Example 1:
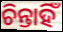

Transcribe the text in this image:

ଚିନ୍ତାହିଁ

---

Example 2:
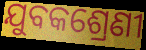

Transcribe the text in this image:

ଯୁବକଶ୍ରେଣୀ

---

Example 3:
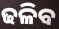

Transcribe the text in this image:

ଢଳିବ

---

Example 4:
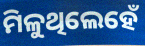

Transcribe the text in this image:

ମିଳୁଥିଲେହେଁ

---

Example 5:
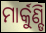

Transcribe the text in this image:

ମାର୍କୁଣ୍ଡି